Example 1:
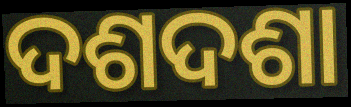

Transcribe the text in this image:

ଦଶଦଶା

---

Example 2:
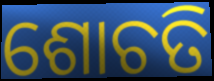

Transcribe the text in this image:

ଶୋଚତି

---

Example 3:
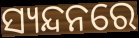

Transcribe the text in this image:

ସ୍ୟନ୍ଦନରେ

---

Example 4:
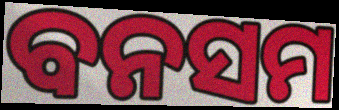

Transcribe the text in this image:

ବନସମ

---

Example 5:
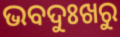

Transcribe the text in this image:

ଭବଦୁଃଖରୁ